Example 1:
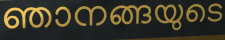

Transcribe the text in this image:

ഞാനങ്ങയുടെ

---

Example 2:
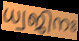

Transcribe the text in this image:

ധ്വജിനഃ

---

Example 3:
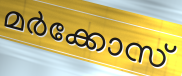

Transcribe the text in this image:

മർക്കോസ്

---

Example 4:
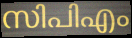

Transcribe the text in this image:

സിപിഎം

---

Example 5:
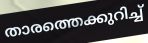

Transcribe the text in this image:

താരത്തെക്കുറിച്ച്